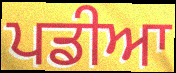
ਪਡੀਆ